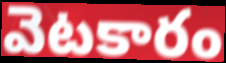
వెటకారం